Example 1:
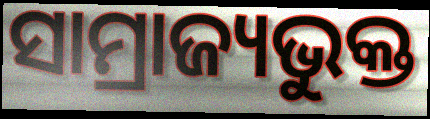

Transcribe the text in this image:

ସାମ୍ରାଜ୍ୟଭୁକ୍ତ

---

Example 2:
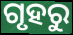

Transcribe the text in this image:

ଗୃହରୁ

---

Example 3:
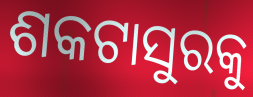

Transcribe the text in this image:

ଶକଟାସୁରକୁ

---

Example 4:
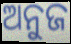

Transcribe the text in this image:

ଅନୁଜ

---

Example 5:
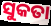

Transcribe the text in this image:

ସୁକତା